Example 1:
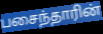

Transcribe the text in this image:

பசைந்தாரின்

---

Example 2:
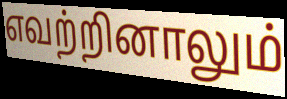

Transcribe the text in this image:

எவற்றினாலும்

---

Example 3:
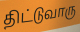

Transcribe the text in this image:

திட்டுவாரு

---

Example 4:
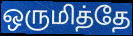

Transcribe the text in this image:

ஒருமித்தே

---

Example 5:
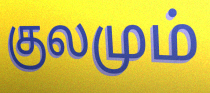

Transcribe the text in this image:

குலமும்